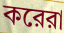
করেরা